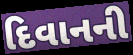
દિવાનની